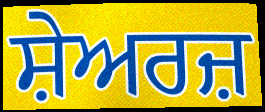
ਸ਼ੇਅਰਜ਼